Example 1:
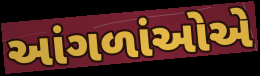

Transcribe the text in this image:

આંગળાંઓએ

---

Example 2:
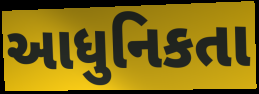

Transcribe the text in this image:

આધુનિકતા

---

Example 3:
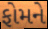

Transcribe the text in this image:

ફોમને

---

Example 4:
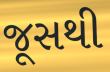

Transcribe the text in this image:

જૂસથી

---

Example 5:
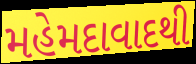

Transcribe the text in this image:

મહેમદાવાદથી